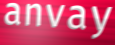
anvay